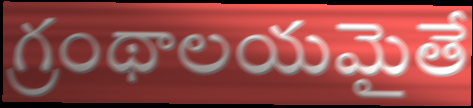
గ్రంథాలయమైతే